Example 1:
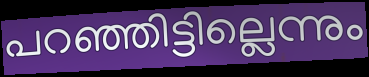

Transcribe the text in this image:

പറഞ്ഞിട്ടില്ലെന്നും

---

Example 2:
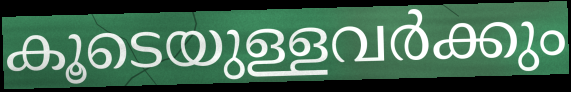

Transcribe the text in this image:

കൂടെയുള്ളവർക്കും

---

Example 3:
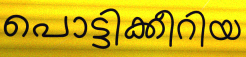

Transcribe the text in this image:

പൊട്ടിക്കീറിയ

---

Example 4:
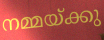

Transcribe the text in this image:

നമ്മയ്ക്കു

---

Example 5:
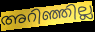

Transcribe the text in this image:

അറിഞ്ഞില്ല